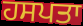
ਹਸਪਤਾ